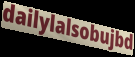
dailylalsobujbd